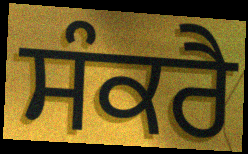
ਸੰਕਰੈ